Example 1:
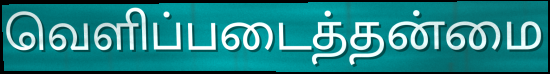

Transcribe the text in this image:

வெளிப்படைத்தன்மை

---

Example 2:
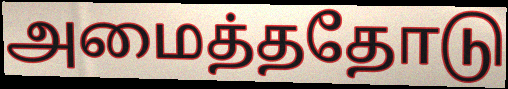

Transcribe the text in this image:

அமைத்ததோடு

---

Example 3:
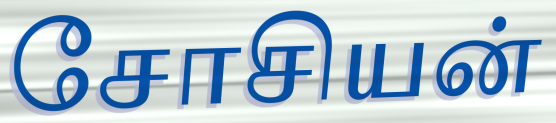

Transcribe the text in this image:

சோசியன்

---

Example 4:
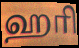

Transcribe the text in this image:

ஹரி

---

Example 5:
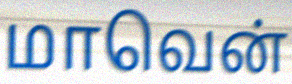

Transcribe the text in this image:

மாவென்